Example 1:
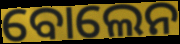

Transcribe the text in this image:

ବୋଲେନ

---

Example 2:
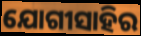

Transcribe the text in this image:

ଯୋଗୀସାହିର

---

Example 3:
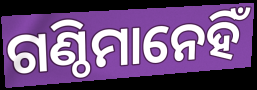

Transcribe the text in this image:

ଗଣ୍ଠିମାନେହିଁ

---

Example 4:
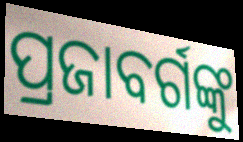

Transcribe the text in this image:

ପ୍ରଜାବର୍ଗଙ୍କୁ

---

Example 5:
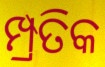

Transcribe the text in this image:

ମ୍ପ୍ରତିକ